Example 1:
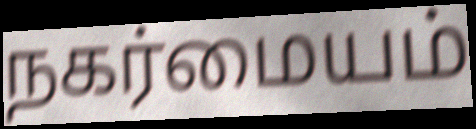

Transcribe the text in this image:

நகர்மையம்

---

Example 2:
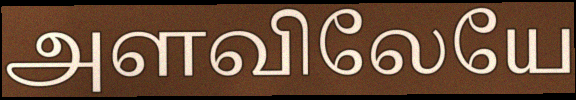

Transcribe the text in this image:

அளவிலேயே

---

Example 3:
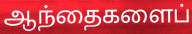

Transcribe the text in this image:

ஆந்தைகளைப்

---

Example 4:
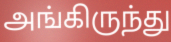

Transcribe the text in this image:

அங்கிருந்து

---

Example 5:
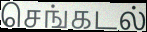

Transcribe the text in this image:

செங்கடல்